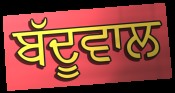
ਬੱਦੂਵਾਲ